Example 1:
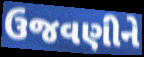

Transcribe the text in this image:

ઉજવણીને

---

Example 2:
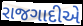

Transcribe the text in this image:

રાજગાદીએ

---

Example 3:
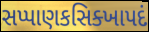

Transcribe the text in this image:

સપ્પાણકસિક્ખાપદં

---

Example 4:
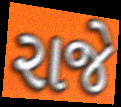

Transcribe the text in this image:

રાજે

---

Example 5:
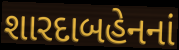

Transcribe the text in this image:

શારદાબહેનનાં